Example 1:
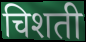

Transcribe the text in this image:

चिशती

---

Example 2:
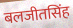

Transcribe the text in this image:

बलजीतसिंह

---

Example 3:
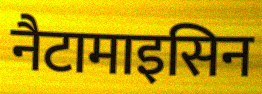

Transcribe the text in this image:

नैटामाइसिन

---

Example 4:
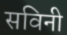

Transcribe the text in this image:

सविनी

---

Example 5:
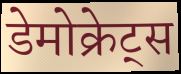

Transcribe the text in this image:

डेमोक्रेट्स